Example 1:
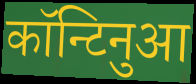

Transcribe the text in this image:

कॉन्टिनुआ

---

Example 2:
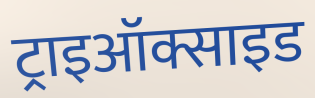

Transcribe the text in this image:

ट्राइऑक्साइड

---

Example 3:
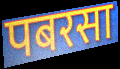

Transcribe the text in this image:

पबरसा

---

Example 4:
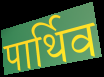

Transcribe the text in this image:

पार्थिव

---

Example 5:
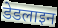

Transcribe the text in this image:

डेडलाइन